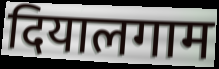
दियालगाम